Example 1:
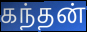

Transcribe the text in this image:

கந்தன்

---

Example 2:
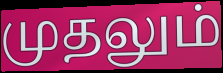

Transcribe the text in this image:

முதலும்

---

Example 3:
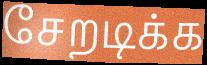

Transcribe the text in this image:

சேறடிக்க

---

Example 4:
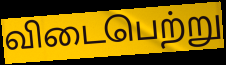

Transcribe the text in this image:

விடைபெற்று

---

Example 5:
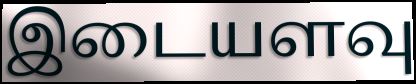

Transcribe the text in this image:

இடையளவு